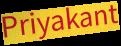
Priyakant